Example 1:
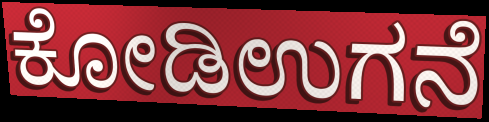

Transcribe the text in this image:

ಕೋಡಿಉಗನೆ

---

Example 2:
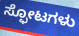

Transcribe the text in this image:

ಸ್ಫೋಟಗಳು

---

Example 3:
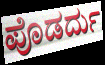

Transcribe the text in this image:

ಪೊಡರ್ದು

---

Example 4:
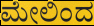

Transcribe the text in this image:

ಮೇಲಿಂದ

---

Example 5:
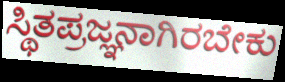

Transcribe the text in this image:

ಸ್ಥಿತಪ್ರಜ್ಞನಾಗಿರಬೇಕು